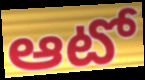
ఆటో